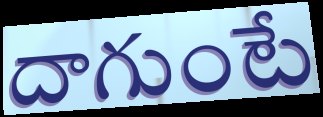
దాగుంటే